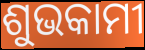
ଶୁଭକାମୀ